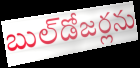
బుల్‌డోజర్లను